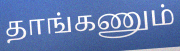
தாங்கணும்